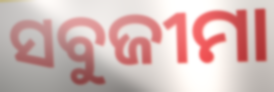
ସବୁଜୀମା